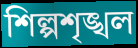
শিল্পশৃঙ্খল